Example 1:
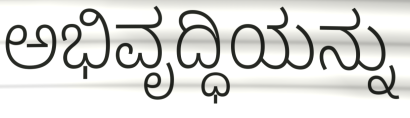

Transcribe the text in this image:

ಅಭಿವೃದ್ಧಿಯನ್ನು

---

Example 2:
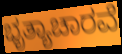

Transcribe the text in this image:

ಭೃತ್ಯಾಚಾರವೆ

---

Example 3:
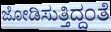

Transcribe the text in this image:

ಜೋಡಿಸುತ್ತಿದ್ದಂತೆ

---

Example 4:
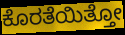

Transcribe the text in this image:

ಕೊರತೆಯಿತ್ತೋ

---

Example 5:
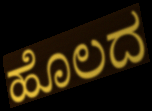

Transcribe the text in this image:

ಹೊಲದ